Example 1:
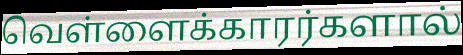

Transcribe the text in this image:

வெள்ளைக்காரர்களால்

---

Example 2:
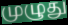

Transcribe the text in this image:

முழுது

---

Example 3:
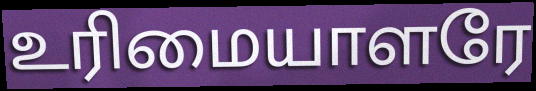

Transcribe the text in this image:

உரிமையாளரே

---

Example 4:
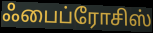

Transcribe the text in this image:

ஃபைப்ரோசிஸ்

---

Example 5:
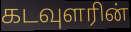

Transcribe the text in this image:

கடவுளரின்